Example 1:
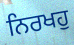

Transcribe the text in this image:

ਨਿਰਖਹੁ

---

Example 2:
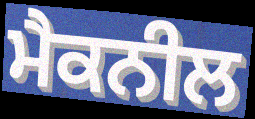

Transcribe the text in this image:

ਮੈਕਨੀਲ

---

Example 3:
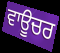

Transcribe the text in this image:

ਵਾਊਚਰ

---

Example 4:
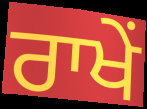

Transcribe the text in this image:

ਰਾਖੇਂ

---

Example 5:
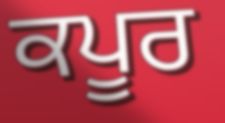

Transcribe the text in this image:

ਕਪੂਰ